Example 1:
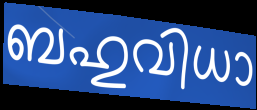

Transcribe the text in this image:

ബഹുവിധാ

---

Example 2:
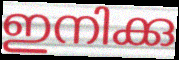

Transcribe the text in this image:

ഇനിക്കു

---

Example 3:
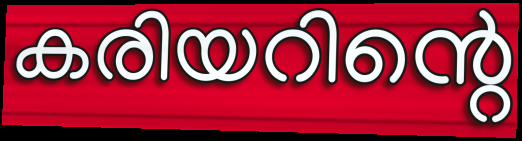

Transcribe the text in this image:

കരിയറിന്റെ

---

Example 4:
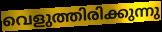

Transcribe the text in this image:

വെളുത്തിരിക്കുന്നു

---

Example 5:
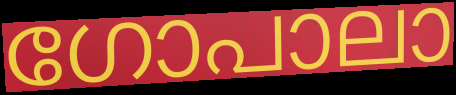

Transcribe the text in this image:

ഗോപാലാ